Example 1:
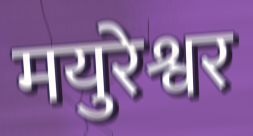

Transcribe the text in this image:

मयुरेश्वर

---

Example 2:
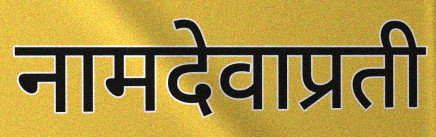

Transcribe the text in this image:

नामदेवाप्रती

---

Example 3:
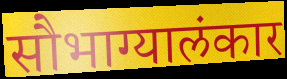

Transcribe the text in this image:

सौभाग्यालंकार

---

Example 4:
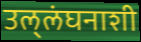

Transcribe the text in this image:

उल्लंघनाशी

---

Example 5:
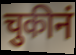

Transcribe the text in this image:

चुकीनं